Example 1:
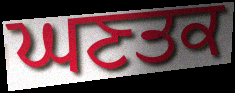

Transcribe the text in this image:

ਘਣਤਕ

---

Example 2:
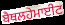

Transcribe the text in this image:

ਬੈਥਲਹੇਮਾਈਟ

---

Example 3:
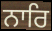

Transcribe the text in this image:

ਨਾਰਿ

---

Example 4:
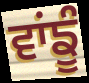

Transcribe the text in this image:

ਵਾਂਙੂੰ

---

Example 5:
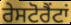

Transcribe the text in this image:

ਰੇਸਟੋਰੈਂਟਾਂ